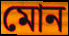
মোন